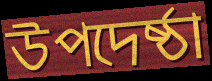
উপদেষ্ঠা